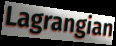
Lagrangian